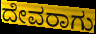
ದೇವರಾಗು